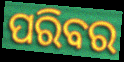
ପରିବର